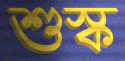
শুস্ক